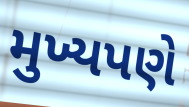
મુખ્યપણે